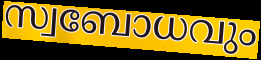
സ്വബോധവും